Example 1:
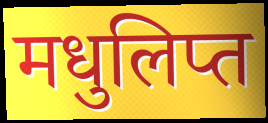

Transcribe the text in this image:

मधुलिप्त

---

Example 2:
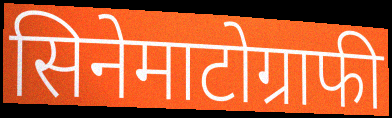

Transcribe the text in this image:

सिनेमाटोग्राफी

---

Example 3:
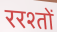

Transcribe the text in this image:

ररश्तों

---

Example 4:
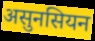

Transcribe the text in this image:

असुनसियन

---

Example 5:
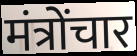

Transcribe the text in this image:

मंत्रोंचार